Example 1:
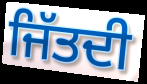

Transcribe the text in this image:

ਜਿੱਤਦੀ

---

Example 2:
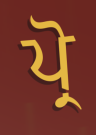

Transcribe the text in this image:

ਪ੍ਰੋ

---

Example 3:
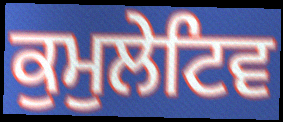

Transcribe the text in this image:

ਕੁਮੁਲੇਟਿਵ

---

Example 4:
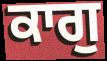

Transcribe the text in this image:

ਕਾਗੁ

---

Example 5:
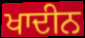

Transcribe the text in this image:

ਖਾਦੀਨ